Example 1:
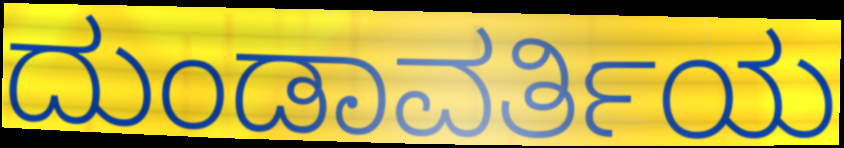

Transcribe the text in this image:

ದುಂಡಾವರ್ತಿಯ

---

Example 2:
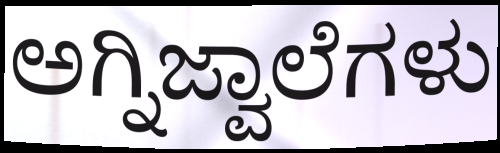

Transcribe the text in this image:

ಅಗ್ನಿಜ್ವಾಲೆಗಳು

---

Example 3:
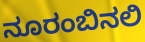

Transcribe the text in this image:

ನೂರಂಬಿನಲಿ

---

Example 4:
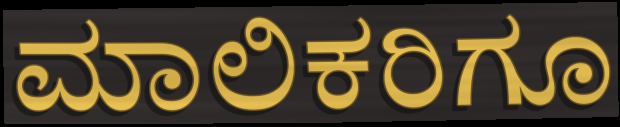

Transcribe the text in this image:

ಮಾಲಿಕರಿಗೂ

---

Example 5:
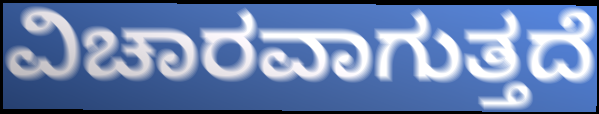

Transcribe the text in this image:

ವಿಚಾರವಾಗುತ್ತದೆ